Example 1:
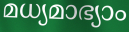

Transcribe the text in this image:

മധ്യമാഭ്യാം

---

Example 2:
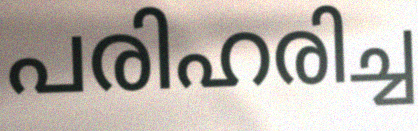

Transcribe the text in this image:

പരിഹരിച്ച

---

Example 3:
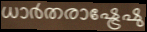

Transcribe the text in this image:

ധാർതരാഷ്ട്രേഷു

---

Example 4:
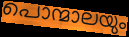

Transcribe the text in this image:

പൊന്മാലയും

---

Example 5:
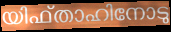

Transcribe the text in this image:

യിഫ്താഹിനോടു